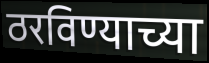
ठरविण्याच्या